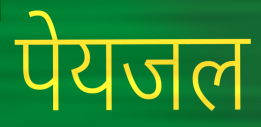
पेयजल